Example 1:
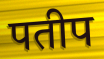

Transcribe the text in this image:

पतीप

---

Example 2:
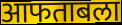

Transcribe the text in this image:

आफताबला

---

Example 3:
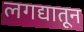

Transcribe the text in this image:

लगद्यातून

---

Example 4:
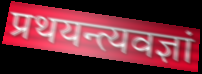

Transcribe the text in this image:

प्रथयन्त्यवज्ञां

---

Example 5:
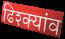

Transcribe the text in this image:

ढिश्क्यांव